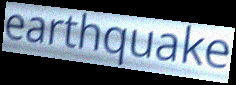
earthquake